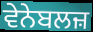
ਵੇਨੇਬਲਜ਼